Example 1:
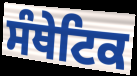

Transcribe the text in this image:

ਸੰਥੇਟਿਕ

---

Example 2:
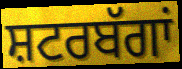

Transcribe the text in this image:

ਸ਼ਟਰਬੱਗਾਂ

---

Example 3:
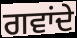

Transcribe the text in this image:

ਗਵਾਂਦੇ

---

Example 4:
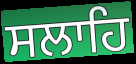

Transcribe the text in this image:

ਸਲਾਹਿ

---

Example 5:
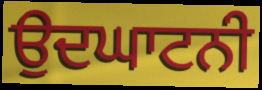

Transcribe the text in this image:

ਉਦਘਾਟਨੀ